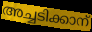
അച്ചടിക്കാന്